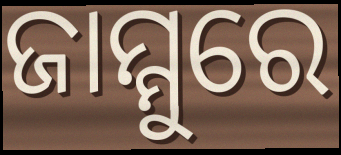
ଜାମ୍ମୁରେ